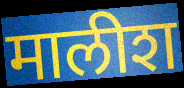
मालीश